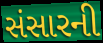
સંસારની